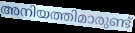
അനിയത്തിമാരുണ്ട്